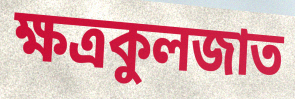
ক্ষত্রকুলজাত